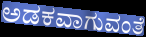
ಅಡಕವಾಗುವಂತೆ